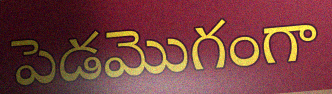
పెడమొగంగా